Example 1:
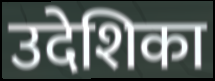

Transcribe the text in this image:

उदेशिका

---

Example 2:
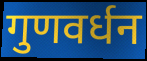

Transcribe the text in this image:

गुणवर्धन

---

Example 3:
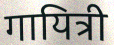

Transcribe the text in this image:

गायित्री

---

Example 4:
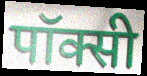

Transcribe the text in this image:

पॉक्सी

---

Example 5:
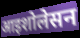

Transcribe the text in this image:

आइशोलेसन